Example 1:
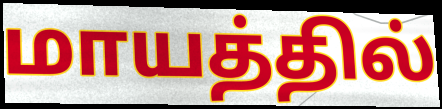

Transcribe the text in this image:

மாயத்தில்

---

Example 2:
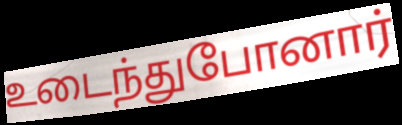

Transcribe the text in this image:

உடைந்துபோனார்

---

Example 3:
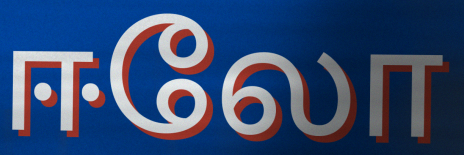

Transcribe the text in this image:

ஈலோ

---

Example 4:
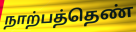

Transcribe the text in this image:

நாற்பத்தெண்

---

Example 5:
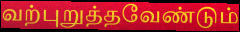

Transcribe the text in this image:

வற்புறுத்தவேண்டும்